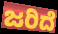
ಜರಿದೆ